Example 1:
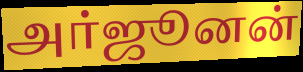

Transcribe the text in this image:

அர்ஜூனன்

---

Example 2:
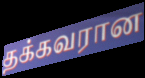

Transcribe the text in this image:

தக்கவரான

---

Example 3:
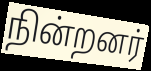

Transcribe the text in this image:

நின்றனர்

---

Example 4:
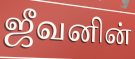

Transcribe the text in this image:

ஜீவனின்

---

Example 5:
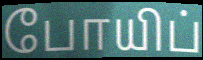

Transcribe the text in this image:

போயிப்